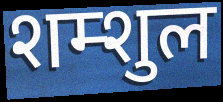
शम्शुल